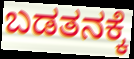
ಬಡತನಕ್ಕೆ